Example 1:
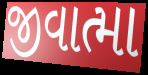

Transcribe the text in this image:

જીવાત્મા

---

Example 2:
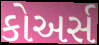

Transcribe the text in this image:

કોઅર્સ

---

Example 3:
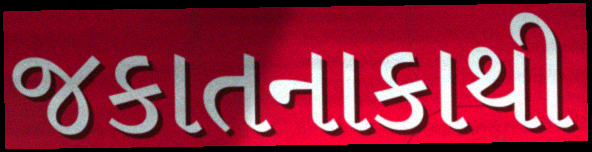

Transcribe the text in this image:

જકાતનાકાથી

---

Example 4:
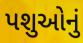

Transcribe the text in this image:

પશુઓનું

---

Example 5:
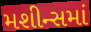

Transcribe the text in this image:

મશીન્સમાં